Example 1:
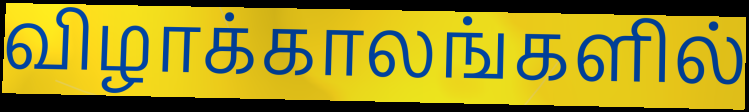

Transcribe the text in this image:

விழாக்காலங்களில்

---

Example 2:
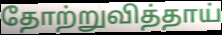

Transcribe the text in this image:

தோற்றுவித்தாய்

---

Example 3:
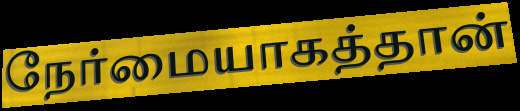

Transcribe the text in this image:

நேர்மையாகத்தான்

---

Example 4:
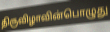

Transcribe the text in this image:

திருவிழாவின்பொழுது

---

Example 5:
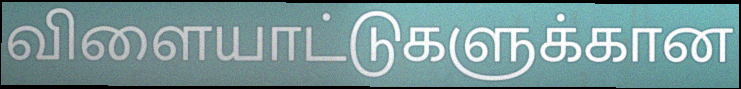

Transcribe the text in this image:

விளையாட்டுகளுக்கான